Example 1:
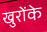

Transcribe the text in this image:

खुरोंके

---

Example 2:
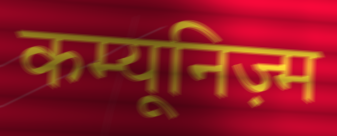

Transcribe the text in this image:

कम्यूनिज़्म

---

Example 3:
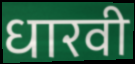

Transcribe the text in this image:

धारवी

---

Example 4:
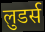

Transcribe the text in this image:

लुडर्स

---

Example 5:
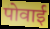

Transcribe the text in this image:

पोवाई